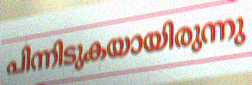
പിന്നിടുകയായിരുന്നു